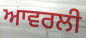
ਆਵਰਲੀ